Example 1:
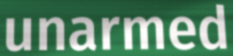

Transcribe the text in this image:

unarmed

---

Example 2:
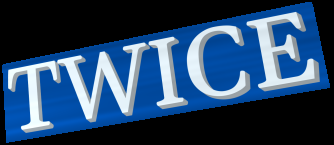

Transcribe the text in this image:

TWICE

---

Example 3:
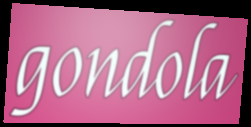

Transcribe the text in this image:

gondola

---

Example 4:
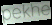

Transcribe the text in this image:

pekhe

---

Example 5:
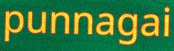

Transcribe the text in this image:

punnagai